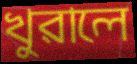
খুৱালে